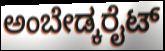
ಅಂಬೇಡ್ಕರೈಟ್